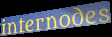
internodes